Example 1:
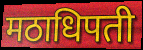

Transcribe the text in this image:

मठाधिपती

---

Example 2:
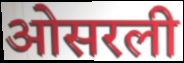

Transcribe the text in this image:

ओसरली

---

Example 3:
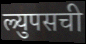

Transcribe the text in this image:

ल्युपसची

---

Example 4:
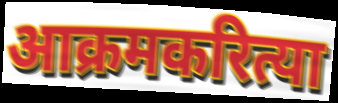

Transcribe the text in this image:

आक्रमकरित्या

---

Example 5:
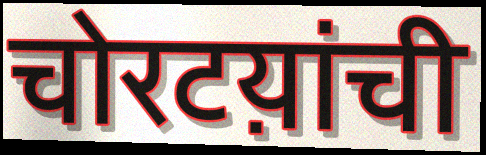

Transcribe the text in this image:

चोरटय़ांची